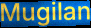
Mugilan